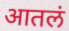
आतलं